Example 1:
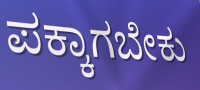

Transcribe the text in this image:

ಪಕ್ಕಾಗಬೇಕು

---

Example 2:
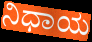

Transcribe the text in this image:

ನಿಧಾಯ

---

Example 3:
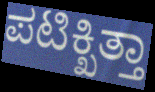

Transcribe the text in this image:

ಪಟಿಕ್ಖಿತ್ತಾ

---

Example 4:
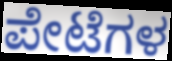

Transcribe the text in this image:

ಪೇಟೆಗಳ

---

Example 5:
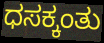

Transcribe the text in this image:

ಧಸಕ್ಕಂತು